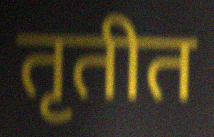
तृतीत